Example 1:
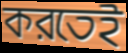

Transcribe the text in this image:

করতেই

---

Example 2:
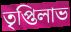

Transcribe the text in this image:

তৃপ্তিলাভ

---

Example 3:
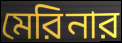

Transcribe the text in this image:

মেরিনার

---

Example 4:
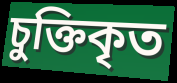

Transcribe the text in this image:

চুক্তিকৃত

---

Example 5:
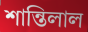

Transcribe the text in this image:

শান্তিলাল